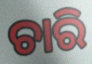
ଚାରି